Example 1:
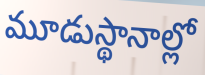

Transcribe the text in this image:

మూడుస్థానాల్లో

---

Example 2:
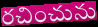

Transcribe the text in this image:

రచించును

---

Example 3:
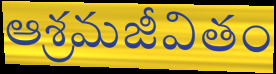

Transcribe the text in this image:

ఆశ్రమజీవితం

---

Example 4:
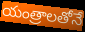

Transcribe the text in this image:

యంత్రాలతోనే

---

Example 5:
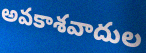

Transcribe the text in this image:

అవకాశవాదుల